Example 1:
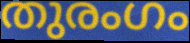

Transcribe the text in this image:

തുരംഗം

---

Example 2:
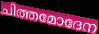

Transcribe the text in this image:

ചിത്തമോദേന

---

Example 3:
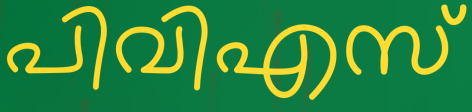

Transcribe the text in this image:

പിവിഎസ്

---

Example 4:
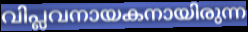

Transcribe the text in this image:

വിപ്ലവനായകനായിരുന്ന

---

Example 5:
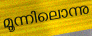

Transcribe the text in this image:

മൂന്നിലൊന്നു